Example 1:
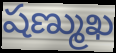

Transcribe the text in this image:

షణ్ముఖ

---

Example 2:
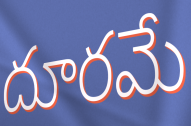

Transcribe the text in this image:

దూరమే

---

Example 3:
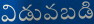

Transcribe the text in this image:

విడువబడి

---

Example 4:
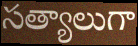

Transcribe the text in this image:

సత్యాలుగా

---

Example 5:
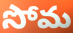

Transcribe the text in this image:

సోమ